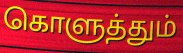
கொளுத்தும்